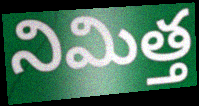
నిమిత్త